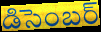
డిసెంబర్